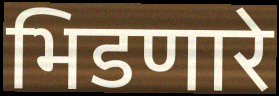
भिडणारे